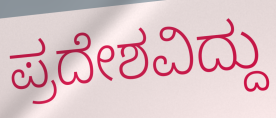
ಪ್ರದೇಶವಿದ್ದು